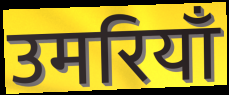
उमरियाँ